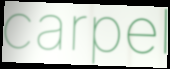
carpel